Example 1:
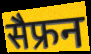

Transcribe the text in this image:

सैफ्रन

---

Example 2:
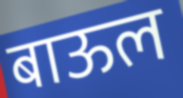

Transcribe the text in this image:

बाऊल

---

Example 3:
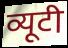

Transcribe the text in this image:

व्यूटी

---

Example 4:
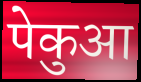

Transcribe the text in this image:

पेकुआ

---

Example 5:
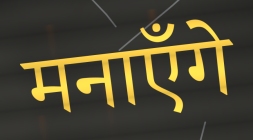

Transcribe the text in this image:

मनाएँगे